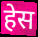
हेस